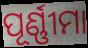
ପୂର୍ଣ୍ଣୀମା